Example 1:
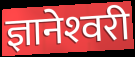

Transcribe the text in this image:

ज्ञानेश्‍वरी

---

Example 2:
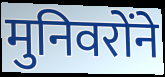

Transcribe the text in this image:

मुनिवरोंने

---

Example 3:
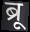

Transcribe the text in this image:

ब्रू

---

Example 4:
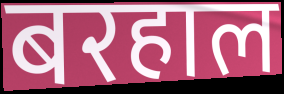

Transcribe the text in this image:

बरहाल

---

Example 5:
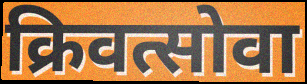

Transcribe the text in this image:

क्रिवत्सोवा